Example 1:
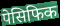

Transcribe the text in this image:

पेसिफिक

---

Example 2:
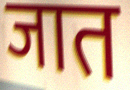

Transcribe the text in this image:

जात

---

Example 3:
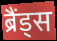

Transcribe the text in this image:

ब्रैंड्स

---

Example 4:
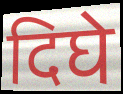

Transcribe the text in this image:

दिघे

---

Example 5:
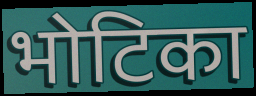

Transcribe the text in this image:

भोटिका